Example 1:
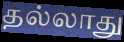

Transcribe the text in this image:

தல்லாது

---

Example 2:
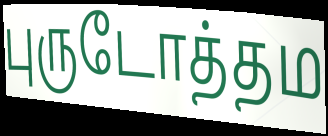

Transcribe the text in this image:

புருடோத்தம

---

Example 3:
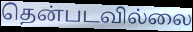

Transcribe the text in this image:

தென்படவில்லை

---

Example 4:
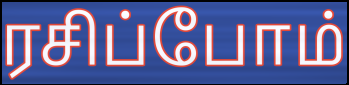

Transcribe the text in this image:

ரசிப்போம்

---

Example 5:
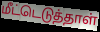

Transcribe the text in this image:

மீட்டெடுத்தாள்